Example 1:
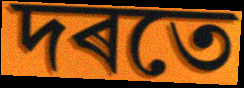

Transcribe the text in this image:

দৰতে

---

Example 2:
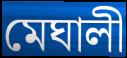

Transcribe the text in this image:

মেঘালী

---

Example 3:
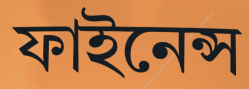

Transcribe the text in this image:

ফাইনেন্স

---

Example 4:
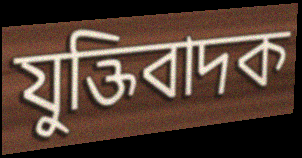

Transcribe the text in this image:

যুক্তিবাদক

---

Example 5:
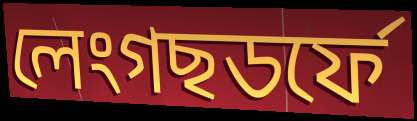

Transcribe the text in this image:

লেংগছডৰ্ফে